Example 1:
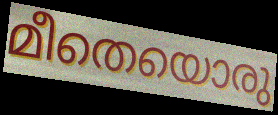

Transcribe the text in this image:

മീതെയൊരു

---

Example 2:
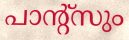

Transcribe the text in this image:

പാന്റ്സും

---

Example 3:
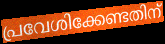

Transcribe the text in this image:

പ്രവേശിക്കേണ്ടതിന്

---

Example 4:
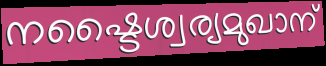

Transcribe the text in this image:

നഷ്ടൈശ്വര്യമുഖാന്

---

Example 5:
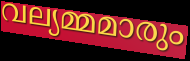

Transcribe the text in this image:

വല്യമ്മമാരും